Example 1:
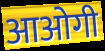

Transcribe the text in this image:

आओगी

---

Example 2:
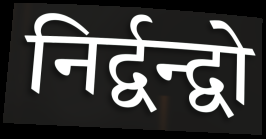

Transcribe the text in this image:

निर्द्वन्द्वो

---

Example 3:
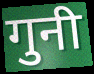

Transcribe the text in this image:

गुनी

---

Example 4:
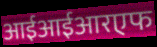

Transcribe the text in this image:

आईआईआरएफ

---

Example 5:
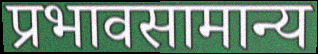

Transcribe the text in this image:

प्रभावसामान्य